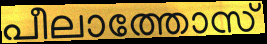
പീലാത്തോസ്